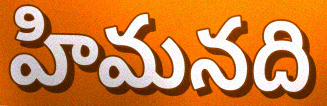
హిమనది